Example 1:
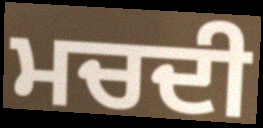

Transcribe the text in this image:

ਮਚਦੀ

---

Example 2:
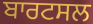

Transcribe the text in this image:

ਬਾਰਟਸਲ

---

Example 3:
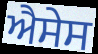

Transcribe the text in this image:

ਐਸੇਸ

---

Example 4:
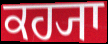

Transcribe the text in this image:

ਕਹ੍ਯਾ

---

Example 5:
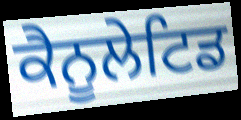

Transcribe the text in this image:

ਕੈਨੂਲੇਟਿਡ